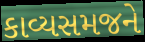
કાવ્યસમજને